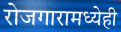
रोजगारामध्येही